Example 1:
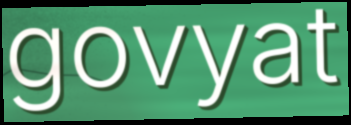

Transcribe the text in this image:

govyat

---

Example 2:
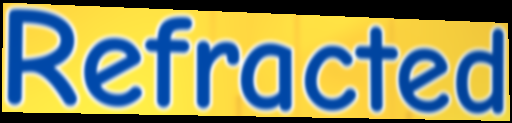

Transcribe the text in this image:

Refracted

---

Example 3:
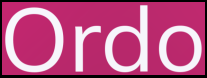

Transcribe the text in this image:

Ordo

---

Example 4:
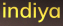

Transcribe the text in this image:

indiya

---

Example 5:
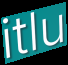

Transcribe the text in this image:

itlu